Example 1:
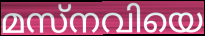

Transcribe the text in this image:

മസ്നവിയെ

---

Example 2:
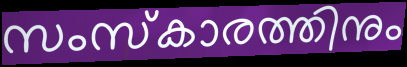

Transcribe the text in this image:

സംസ്കാരത്തിനും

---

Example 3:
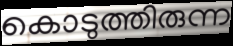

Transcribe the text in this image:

കൊടുത്തിരുന്ന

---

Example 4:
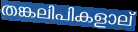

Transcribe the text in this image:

തങ്കലിപികളാല്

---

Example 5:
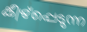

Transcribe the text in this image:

കീഴ്പ്പെടുന്ന